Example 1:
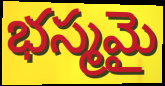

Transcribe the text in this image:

భస్మమై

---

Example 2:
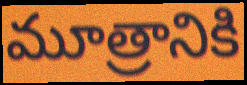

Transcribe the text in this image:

మూత్రానికి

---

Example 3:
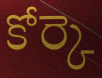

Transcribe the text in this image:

కోర్కె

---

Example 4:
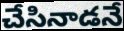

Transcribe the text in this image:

చేసినాడనే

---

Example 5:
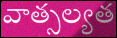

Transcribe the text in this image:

వాత్సల్యత